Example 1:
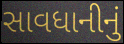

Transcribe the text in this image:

સાવધાનીનું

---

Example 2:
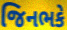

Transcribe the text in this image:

જિનભકે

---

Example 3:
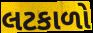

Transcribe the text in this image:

લટકાળો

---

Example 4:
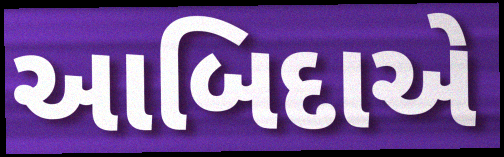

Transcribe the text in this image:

આબિદાએ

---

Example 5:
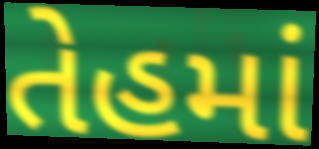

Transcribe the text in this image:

તેહમાં